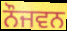
ਨੌਜਵਨ